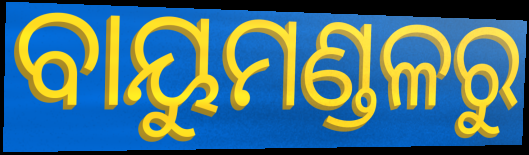
ବାୟୁମଣ୍ଡଳରୁ